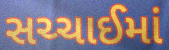
સચ્ચાઈમાં